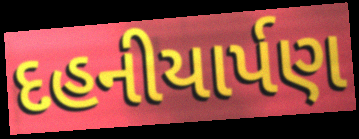
દહનીયાર્પણ